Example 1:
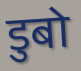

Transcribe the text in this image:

डुबो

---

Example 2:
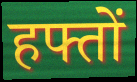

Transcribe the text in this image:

हफ्तों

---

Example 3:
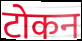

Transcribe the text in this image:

टोकन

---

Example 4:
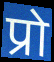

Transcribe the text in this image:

प्रो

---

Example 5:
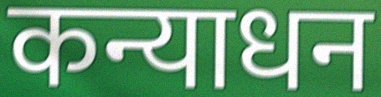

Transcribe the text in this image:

कन्याधन